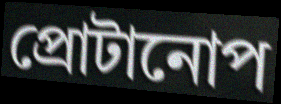
প্রোটানোপ